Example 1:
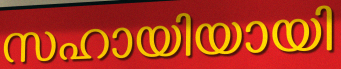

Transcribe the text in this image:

സഹായിയായി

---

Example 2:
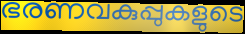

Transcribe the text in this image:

ഭരണവകുപ്പുകളുടെ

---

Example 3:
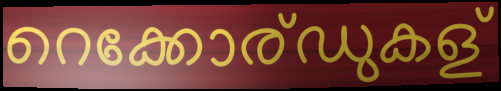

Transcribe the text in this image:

റെക്കോര്ഡുകള്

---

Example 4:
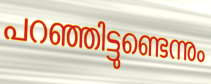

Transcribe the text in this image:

പറഞ്ഞിട്ടുണ്ടെന്നും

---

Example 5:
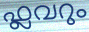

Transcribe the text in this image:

ഫ്ലവറും